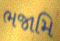
ભજામિ